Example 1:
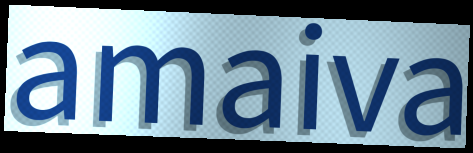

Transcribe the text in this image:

amaiva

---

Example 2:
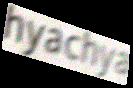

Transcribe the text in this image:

hyachya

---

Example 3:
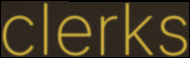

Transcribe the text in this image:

clerks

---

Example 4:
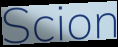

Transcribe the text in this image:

Scion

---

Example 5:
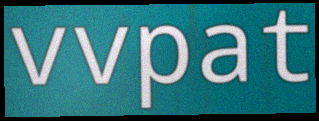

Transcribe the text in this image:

vvpat